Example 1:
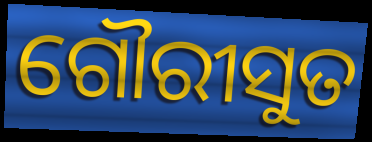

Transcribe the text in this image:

ଗୌରୀସୁତ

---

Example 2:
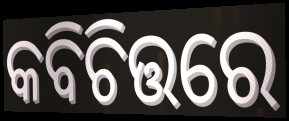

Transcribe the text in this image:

କବିଚିତ୍ତରେ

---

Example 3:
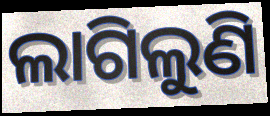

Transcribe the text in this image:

ଲାଗିଲୁଣି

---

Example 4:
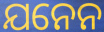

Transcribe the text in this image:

ଯନେନ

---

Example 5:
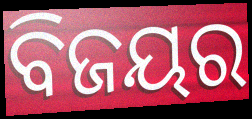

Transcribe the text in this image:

ବିଜୟର